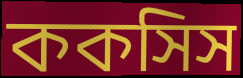
ককসিস